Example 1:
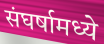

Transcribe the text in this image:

संघर्षामध्ये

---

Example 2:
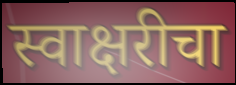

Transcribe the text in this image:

स्वाक्षरीचा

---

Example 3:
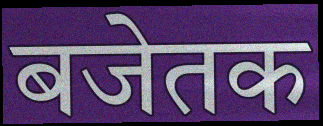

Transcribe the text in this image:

बजेतक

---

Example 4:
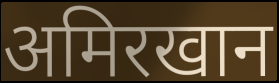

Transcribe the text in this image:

अमिरखान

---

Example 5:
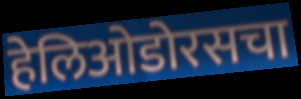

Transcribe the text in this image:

हेलिओडोरसचा